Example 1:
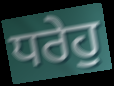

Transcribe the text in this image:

ਧਰੇਹੁ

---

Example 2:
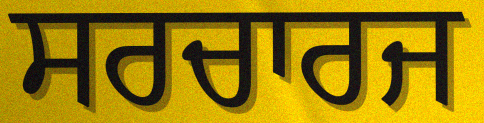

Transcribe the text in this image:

ਸਰਚਾਰਜ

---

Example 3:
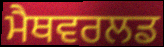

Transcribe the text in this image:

ਮੈਥਵਰਲਡ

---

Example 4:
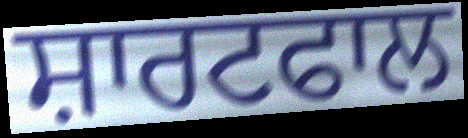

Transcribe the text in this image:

ਸ਼ਾਰਟਫਾਲ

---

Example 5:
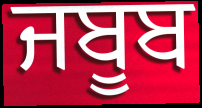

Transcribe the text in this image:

ਜਬੂਬ